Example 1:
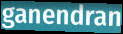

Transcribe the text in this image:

ganendran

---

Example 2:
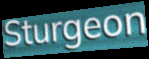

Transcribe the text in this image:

Sturgeon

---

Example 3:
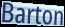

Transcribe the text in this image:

Barton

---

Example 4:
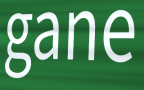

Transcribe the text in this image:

gane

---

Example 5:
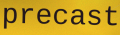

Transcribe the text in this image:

precast